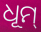
ଧୂମ୍